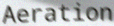
Aeration